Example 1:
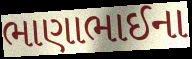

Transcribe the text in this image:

ભાણાભાઈના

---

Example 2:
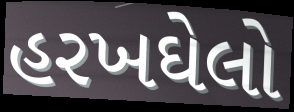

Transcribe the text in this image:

હરખઘેલો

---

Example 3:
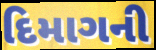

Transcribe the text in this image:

દિમાગની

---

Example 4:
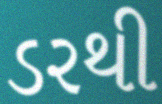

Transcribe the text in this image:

ડરથી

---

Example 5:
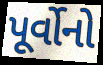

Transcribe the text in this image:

પૂર્વોનો